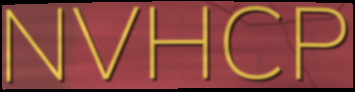
NVHCP